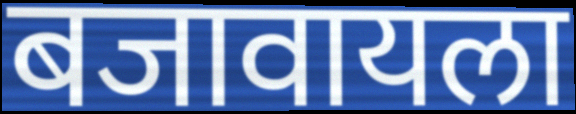
बजावायला